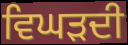
ਵਿਘੜਦੀ